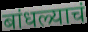
बांधल्याचं